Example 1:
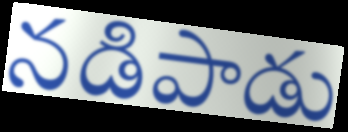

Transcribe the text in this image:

నడిపాడు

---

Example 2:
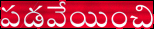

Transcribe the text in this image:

పడవేయించి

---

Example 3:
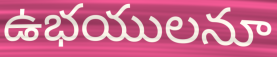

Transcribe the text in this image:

ఉభయులనూ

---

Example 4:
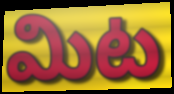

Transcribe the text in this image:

మిట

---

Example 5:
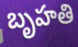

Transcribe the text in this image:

బృహతి